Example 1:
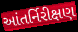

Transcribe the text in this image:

આંતર્નિરીક્ષણ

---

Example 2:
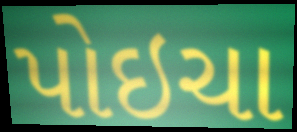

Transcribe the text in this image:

પોઇચા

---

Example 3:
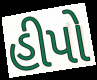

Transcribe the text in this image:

હીપો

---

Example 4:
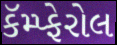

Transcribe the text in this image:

કૅમ્પ્ફેરોલ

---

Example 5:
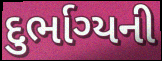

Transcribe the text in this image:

દુર્ભાગ્યની